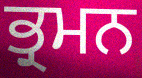
ਭ੍ਰਮਨ